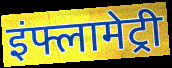
इंफ्लामेट्री